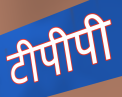
टीपीपी